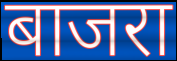
बाजरा